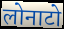
लोनाटो